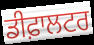
ਡੀਫ਼ਾਲਟਰ